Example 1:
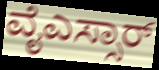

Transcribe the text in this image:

ವೈಎಸ್ಸಾರ್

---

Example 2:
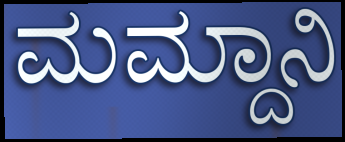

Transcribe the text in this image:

ಮಮ್ದಾನಿ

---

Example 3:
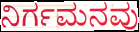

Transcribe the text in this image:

ನಿರ್ಗಮನವು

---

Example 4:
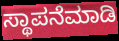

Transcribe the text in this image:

ಸ್ಥಾಪನೆಮಾಡಿ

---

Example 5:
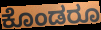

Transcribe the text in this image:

ಕೊಂಡರೂ